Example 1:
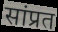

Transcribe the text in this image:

सांप्रत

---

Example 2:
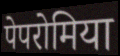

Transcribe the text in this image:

पेपरोमिया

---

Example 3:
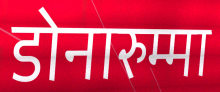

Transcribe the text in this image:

डोनारुम्मा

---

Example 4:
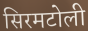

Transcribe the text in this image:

सिरमटोली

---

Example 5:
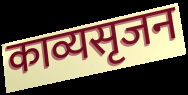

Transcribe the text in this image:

काव्यसृजन